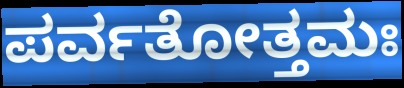
ಪರ್ವತೋತ್ತಮಃ